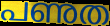
പണുത